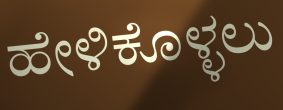
ಹೇಳಿಕೊಳ್ಳಲು